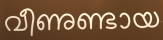
വീണുണ്ടായ